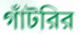
গাঁটরির